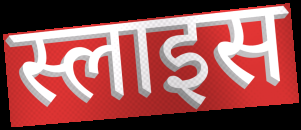
स्लाइस